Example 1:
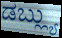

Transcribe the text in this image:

ಡಬ್ಲ್ಯು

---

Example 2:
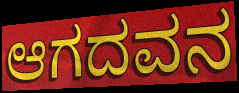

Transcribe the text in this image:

ಆಗದವನ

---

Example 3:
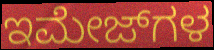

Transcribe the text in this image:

ಇಮೇಜ್‌ಗಳ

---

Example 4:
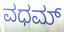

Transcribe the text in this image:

ವಧಮ್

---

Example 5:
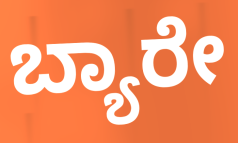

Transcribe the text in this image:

ಬ್ಯಾರೇ